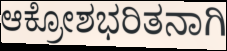
ಆಕ್ರೋಶಭರಿತನಾಗಿ